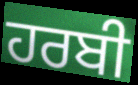
ਹਰਬੀ